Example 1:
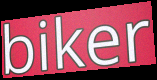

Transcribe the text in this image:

biker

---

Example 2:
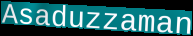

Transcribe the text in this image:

Asaduzzaman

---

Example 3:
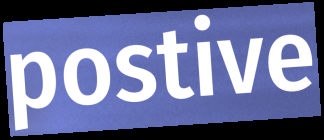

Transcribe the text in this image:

postive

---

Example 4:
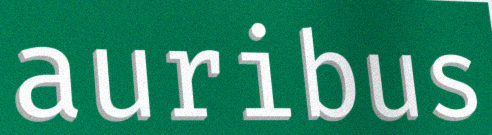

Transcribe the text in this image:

auribus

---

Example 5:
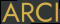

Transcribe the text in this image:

ARCI